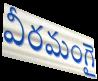
వీరమంగై